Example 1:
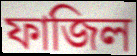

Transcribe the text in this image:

ফাজিল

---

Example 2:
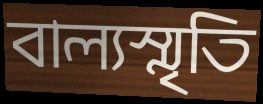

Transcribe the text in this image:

বাল্যস্মৃতি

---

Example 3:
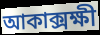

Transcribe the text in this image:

আকাক্সক্ষী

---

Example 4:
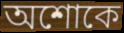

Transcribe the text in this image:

অশোকে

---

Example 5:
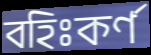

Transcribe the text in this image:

বহিঃকর্ণ